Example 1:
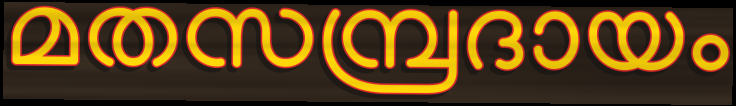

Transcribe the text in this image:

മതസമ്പ്രദായം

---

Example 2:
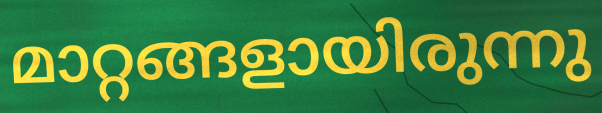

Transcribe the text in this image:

മാറ്റങ്ങളായിരുന്നു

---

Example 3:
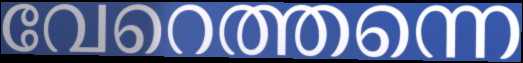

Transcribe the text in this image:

വേറെത്തന്നെ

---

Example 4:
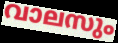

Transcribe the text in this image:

വാലസും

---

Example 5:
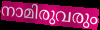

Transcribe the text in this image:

നാമിരുവരും